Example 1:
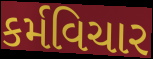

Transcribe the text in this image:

કર્મવિચાર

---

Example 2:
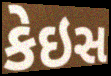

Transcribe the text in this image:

કેઇસ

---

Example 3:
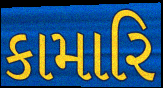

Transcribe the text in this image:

કામારિ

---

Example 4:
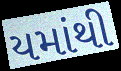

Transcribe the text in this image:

યમાંથી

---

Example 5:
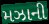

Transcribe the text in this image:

મઝાની